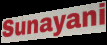
Sunayani